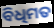
ବିଧିମତ